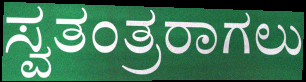
ಸ್ವತಂತ್ರರಾಗಲು